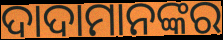
ଦାଦାମାନଙ୍କର